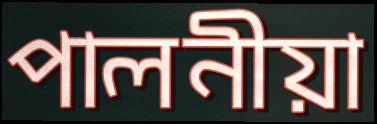
পালনীয়া